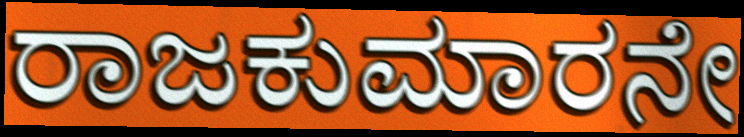
ರಾಜಕುಮಾರನೇ